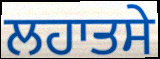
ਲਹਾਤਸੇ